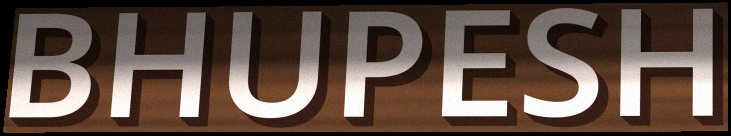
BHUPESH